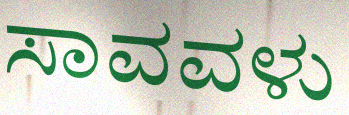
ಸಾವವಳು